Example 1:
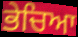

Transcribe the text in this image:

ਭੇਚਿਆ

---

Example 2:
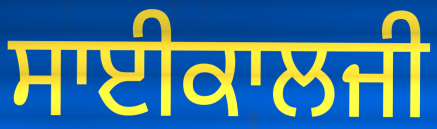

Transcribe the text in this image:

ਸਾਈਕਾਲਜੀ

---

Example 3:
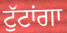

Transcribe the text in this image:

ਟੁੱਟਾਂਗਾ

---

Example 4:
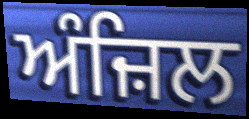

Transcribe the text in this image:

ਅੰਜ਼ਿਲ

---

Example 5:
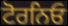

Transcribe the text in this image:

ਟੋਰਨਿਓ